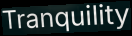
Tranquility